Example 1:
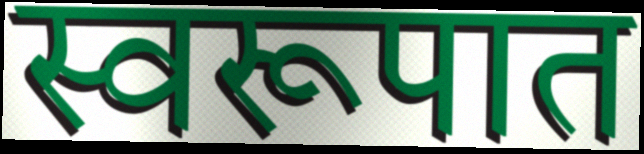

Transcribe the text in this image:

स्वरूपात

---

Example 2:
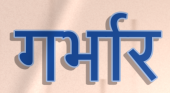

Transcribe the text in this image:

गर्भार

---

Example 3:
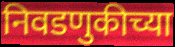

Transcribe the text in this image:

निवडणुकीच्या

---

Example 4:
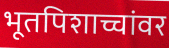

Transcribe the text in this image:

भूतपिशाच्चांवर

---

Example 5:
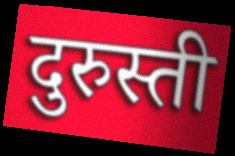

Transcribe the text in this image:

दुरुस्ती